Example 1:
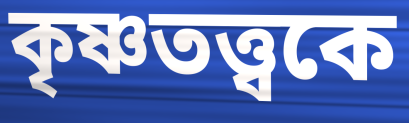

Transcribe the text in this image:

কৃষ্ণতত্ত্বকে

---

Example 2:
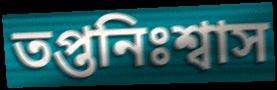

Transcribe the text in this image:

তপ্তনিঃশ্বাস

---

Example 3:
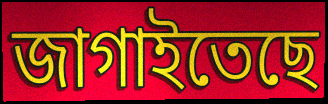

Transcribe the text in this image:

জাগাইতেছে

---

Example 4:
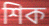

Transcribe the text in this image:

শিক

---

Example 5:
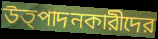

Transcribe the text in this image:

উত্পাদনকারীদের